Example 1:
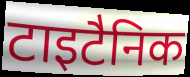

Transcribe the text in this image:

टाइटैनिक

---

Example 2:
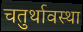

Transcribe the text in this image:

चतुर्थावस्था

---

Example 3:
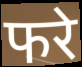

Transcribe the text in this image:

फरे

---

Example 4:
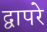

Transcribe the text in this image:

द्वापरे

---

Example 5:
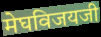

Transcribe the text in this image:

मेघविजयजी